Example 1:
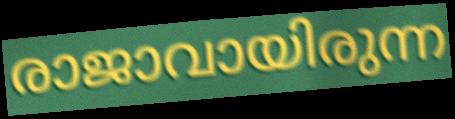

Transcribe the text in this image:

രാജാവായിരുന്ന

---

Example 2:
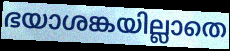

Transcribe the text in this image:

ഭയാശങ്കയില്ലാതെ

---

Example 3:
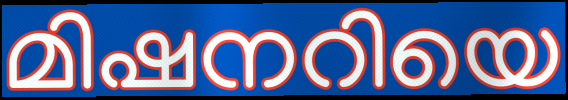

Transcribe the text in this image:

മിഷനറിയെ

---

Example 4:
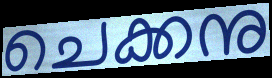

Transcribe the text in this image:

ചെക്കനു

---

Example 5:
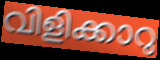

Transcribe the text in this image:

വിളിക്കാറു